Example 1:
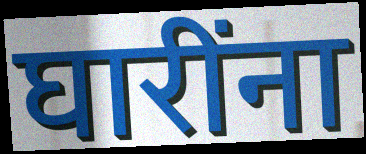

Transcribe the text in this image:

घारींना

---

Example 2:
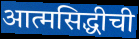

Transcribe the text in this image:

आत्मसिद्धीची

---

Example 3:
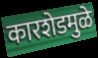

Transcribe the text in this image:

कारशेडमुळे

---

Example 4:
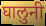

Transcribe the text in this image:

घालुनी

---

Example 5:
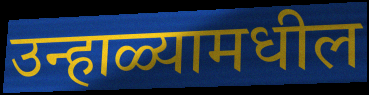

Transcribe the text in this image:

उन्हाळ्यामधील